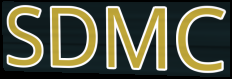
SDMC